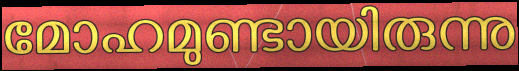
മോഹമുണ്ടായിരുന്നു